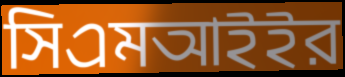
সিএমআইইর